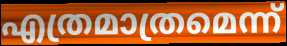
എത്രമാത്രമെന്ന്